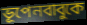
ভূপেনবাবুকে